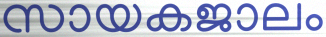
സായകജാലം